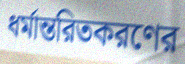
ধর্মান্তরিতকরণের